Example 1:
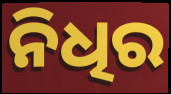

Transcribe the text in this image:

ନିଧିର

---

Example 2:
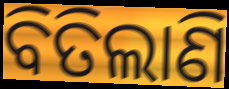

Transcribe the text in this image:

ବିତିଲାଣି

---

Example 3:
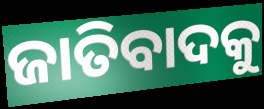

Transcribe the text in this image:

ଜାତିବାଦକୁ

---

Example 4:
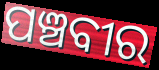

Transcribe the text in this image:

ପଞ୍ଚବୀର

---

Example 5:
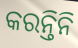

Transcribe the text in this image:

କରନ୍ତିନି